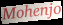
Mohenjo